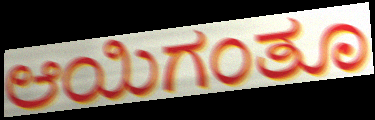
ಆಯಿಗಂತೂ